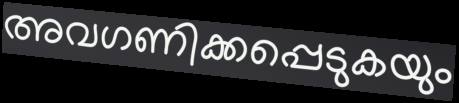
അവഗണിക്കപ്പെടുകയും